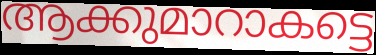
ആക്കുമാറാകട്ടെ